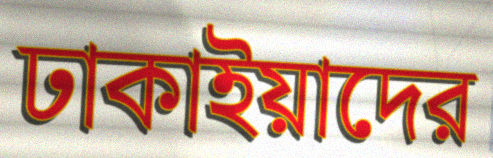
ঢাকাইয়াদের